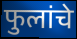
फुलांचे